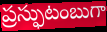
ప్రస్ఫుటంబుగా